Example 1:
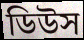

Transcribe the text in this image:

ডিউস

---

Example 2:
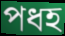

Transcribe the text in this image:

পধহ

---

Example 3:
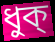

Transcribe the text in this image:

ধুক্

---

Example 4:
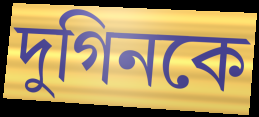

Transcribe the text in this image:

দুগিনকে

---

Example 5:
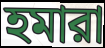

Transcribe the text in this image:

হমারা